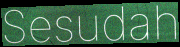
Sesudah